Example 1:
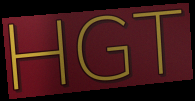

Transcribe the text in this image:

HGT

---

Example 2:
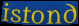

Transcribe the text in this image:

istond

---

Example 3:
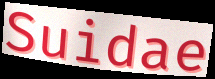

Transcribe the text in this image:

Suidae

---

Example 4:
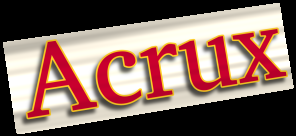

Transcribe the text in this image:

Acrux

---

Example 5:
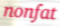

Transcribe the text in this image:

nonfat